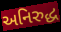
અનિરુદ્ધ